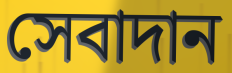
সেবাদান